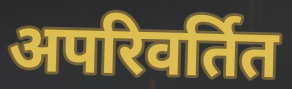
अपरिवर्तित